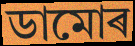
ডামোৰ